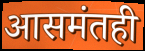
आसमंतही